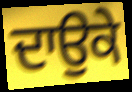
ਦਾਉਕੇ